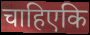
चाहिएकि